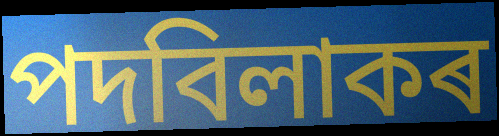
পদবিলাকৰ